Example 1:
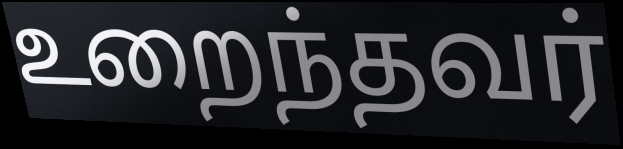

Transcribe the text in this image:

உறைந்தவர்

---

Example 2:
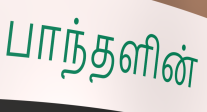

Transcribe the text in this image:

பாந்தளின்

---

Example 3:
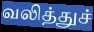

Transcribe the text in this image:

வலித்துச்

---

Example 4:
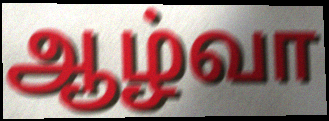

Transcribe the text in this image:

ஆழ்வா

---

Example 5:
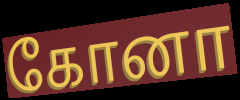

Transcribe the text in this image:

கோனா